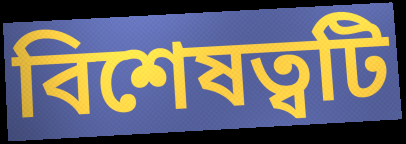
বিশেষত্বটি